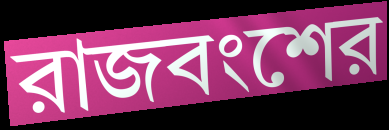
রাজবংশের